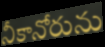
నీకానోరును